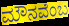
ಮೌನವೆಂಬ